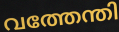
വത്തേന്തി